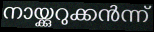
നായ്ക്കുറുക്കൻന്ന്